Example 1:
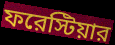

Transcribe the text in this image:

ফরেস্টিয়ার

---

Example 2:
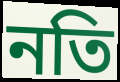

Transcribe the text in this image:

নতি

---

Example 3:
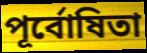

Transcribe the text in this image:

পূর্বোষিতা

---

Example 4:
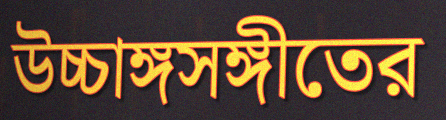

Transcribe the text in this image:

উচ্চাঙ্গসঙ্গীতের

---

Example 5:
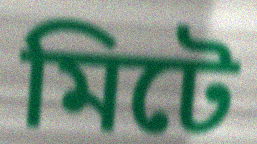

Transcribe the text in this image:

মিটে